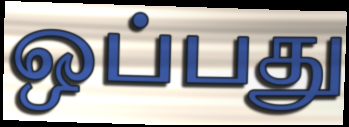
ஒப்பது